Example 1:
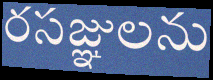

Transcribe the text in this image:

రసజ్ఞులను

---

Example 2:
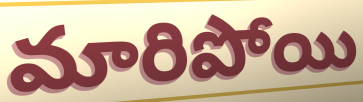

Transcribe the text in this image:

మారిపోయి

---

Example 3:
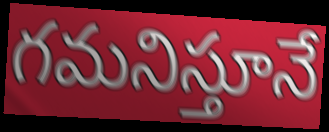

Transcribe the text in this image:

గమనిస్తూనే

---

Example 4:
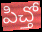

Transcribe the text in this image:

పిచ్తో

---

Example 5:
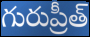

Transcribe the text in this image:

గురుప్రీత్